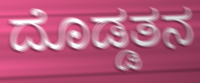
ದೊಡ್ಡತನ